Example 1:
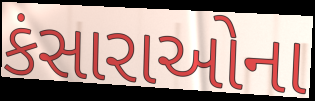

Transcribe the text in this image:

કંસારાઓના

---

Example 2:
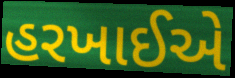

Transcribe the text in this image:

હરખાઈએ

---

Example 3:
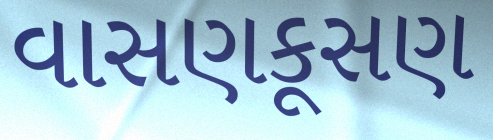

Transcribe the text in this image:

વાસણકૂસણ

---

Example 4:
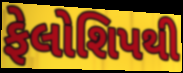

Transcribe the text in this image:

ફેલોશિપથી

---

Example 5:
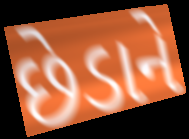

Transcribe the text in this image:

છેડાને